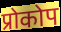
प्रोकोप